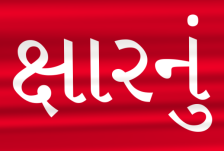
ક્ષારનું